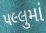
પલ્લુમાં